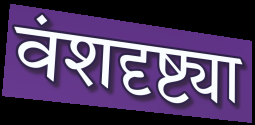
वंशदृष्ट्या